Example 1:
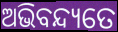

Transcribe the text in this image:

ଅଭିବନ୍ଦ୍ୟତେ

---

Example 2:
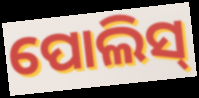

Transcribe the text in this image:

ପୋଲିସ୍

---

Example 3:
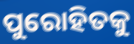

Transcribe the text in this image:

ପୁରୋହିତକୁ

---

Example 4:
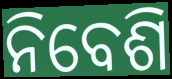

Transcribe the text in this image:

ନିବେଶି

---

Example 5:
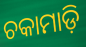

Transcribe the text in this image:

ଚକାମାଡ଼ି